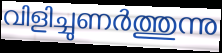
വിളിച്ചുണർത്തുന്നു